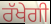
ਰੱਖੇਗੀ